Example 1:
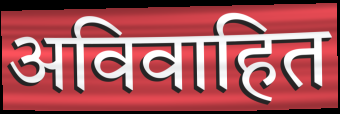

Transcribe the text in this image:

अविवाहित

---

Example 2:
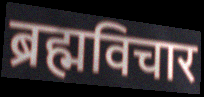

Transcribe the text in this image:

ब्रह्मविचार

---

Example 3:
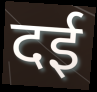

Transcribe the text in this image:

दई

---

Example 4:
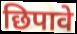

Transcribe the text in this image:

छिपावे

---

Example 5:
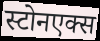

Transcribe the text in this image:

स्टोनएक्स